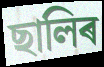
ছালিৰ